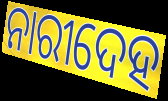
ନାରୀଦେହ